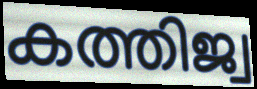
കത്തിജ്വ